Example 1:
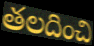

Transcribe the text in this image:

తలదించి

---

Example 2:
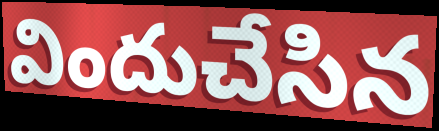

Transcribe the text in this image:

విందుచేసిన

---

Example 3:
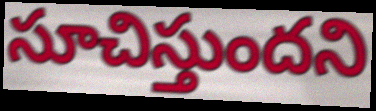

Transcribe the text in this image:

సూచిస్తుందని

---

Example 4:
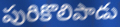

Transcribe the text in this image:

పురికొలిపాడు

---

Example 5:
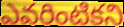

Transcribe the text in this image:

ఎవరింటికని